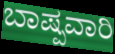
ಬಾಷ್ಪವಾರಿ